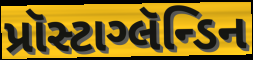
પ્રૉસ્ટાગ્લૅન્ડિન